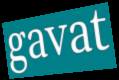
gavat